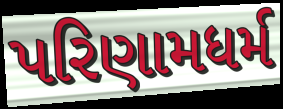
પરિણામધર્મ